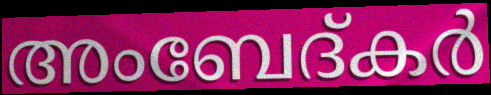
അംബേദ്കർ